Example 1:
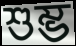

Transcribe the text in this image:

শুম্ভ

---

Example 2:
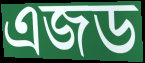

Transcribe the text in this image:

এজড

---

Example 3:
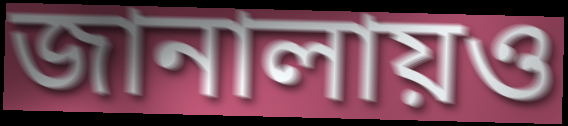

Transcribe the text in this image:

জানালায়ও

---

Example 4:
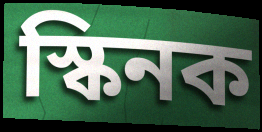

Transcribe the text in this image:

স্কিনক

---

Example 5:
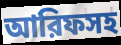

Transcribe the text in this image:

আরিফসহ